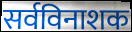
सर्वविनाशक